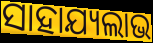
ସାହାଯ୍ୟଲାଭ